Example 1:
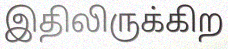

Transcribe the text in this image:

இதிலிருக்கிற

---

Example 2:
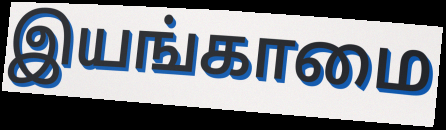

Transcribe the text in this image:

இயங்காமை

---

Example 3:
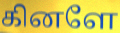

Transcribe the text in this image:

கினளே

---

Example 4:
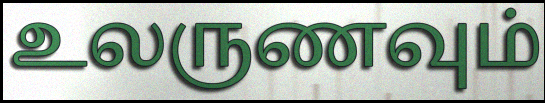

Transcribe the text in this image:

உலருணவும்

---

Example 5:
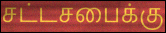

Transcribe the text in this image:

சட்டசபைக்கு